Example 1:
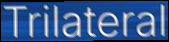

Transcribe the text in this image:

Trilateral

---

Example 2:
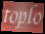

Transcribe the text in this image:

toplo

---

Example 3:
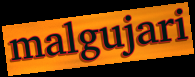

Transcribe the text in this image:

malgujari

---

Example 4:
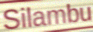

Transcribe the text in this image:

Silambu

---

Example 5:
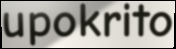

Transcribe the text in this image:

upokrito